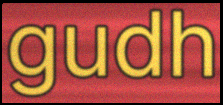
gudh